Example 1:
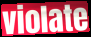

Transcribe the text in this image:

violate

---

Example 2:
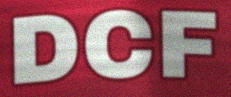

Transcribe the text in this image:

DCF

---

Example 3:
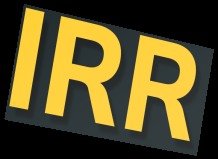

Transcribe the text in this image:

IRR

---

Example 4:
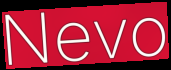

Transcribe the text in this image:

Nevo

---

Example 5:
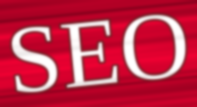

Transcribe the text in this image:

SEO